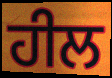
ਹੀਲ